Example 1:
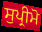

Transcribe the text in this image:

ਸੁਪ੍ਰੀਮੋ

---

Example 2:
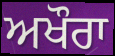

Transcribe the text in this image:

ਅਖੌਰਾ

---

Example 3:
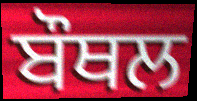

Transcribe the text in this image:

ਬੌਥਲ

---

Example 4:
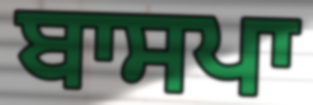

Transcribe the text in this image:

ਬਾਸਪਾ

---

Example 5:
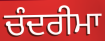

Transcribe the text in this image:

ਚੰਦਰੀਮਾ